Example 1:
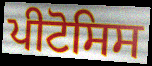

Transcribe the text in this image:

ਪੀਟੋਸਿਸ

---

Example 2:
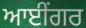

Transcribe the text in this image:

ਆਈਂਗਰ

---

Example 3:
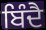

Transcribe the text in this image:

ਬਿੰਦੈ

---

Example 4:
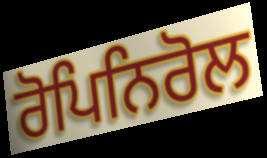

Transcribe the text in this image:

ਰੋਪਿਨਿਰੋਲ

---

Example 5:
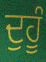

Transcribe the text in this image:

ਦੁਹੂੰ